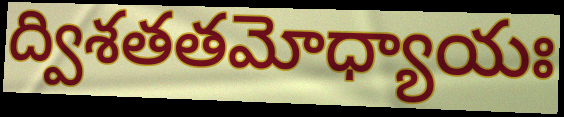
ద్విశతతమోధ్యాయః